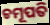
ଚମୂପତି